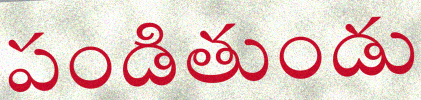
పండితుండు